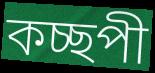
কচ্ছপী